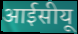
आईसीयू